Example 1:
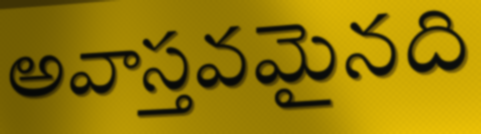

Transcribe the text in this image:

అవాస్తవమైనది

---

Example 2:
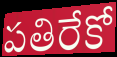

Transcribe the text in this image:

పతిరేకో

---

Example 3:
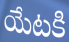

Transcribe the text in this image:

యేటకి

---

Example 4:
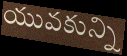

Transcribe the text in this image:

యువకున్ని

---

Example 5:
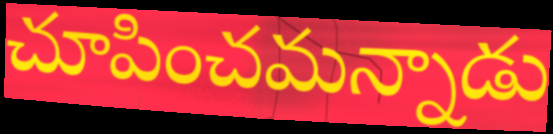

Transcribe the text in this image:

చూపించమన్నాడు